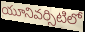
యూనివర్సిటిలో